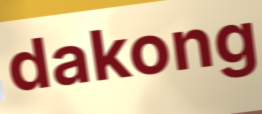
dakong